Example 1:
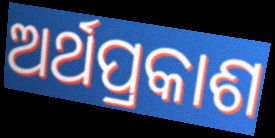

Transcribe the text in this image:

ଅର୍ଥପ୍ରକାଶ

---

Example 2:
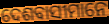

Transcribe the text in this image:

ଦେଶବାସୀମାନେ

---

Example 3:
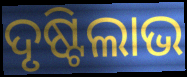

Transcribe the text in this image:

ଦୃଷ୍ଟିଲାଭ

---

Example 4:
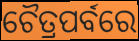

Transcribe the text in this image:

ଚୈତ୍ରପର୍ବରେ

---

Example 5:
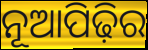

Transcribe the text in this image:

ନୂଆପିଢ଼ିର